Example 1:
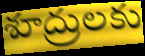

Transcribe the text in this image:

శూద్రులకు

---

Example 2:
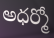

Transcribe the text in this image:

అధర్మో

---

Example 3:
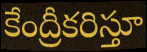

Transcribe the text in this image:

కేంద్రీకరిస్తూ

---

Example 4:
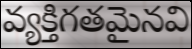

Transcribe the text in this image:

వ్యక్తిగతమైనవి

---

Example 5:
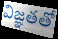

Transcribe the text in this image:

విజ్ఞతతో